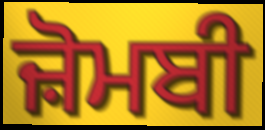
ਜ਼ੋਮਬੀ